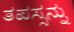
ತಪಸ್ಸನ್ನು